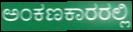
ಅಂಕಣಕಾರರಲ್ಲಿ